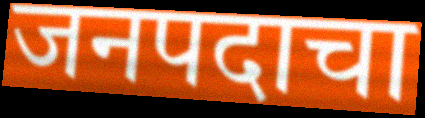
जनपदाचा